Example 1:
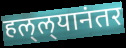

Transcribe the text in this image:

हल्ल्यानंतर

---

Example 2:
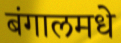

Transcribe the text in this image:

बंगालमधे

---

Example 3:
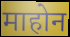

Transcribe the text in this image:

माहोन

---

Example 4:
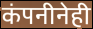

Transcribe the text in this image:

कंपनीनेही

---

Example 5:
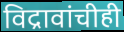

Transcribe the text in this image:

विद्रावांचीही